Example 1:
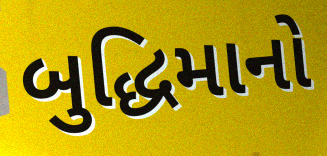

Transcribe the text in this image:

બુદ્ધિમાનો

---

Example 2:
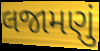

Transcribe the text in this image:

લજામણું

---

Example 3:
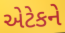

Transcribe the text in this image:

એટેકને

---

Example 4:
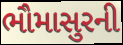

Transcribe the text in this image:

ભૌમાસુરની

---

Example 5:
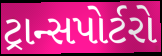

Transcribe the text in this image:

ટ્રાન્સપોર્ટરો